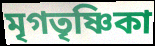
মৃগতৃষ্ণিকা